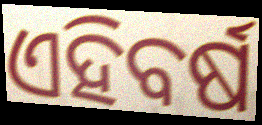
ଏହିବର୍ଷ